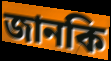
জানকি